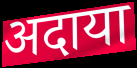
अदाया